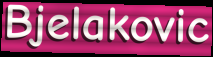
Bjelakovic